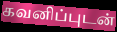
கவனிப்புடன்